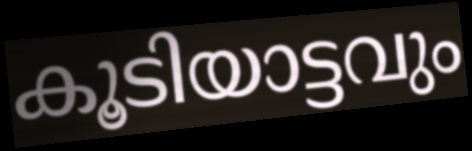
കൂടിയാട്ടവും